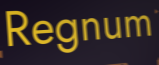
Regnum